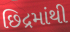
છિદ્રમાંથી